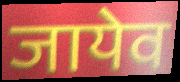
जायेव